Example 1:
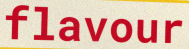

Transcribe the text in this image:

flavour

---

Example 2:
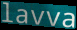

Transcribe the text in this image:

lavva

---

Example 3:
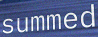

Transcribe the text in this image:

summed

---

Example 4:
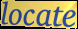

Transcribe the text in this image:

locate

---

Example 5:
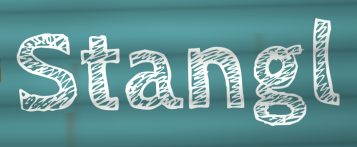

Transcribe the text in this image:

Stangl